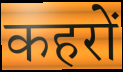
कहरों